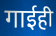
गाईही